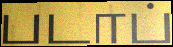
படாப்